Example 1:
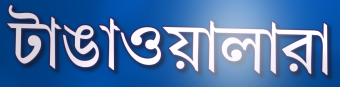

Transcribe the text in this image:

টাঙাওয়ালারা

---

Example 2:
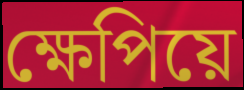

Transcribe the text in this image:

ক্ষেপিয়ে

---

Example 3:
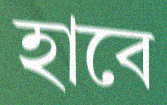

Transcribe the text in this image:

হাবে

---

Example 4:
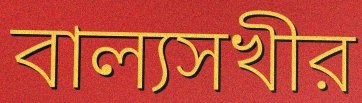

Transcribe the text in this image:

বাল্যসখীর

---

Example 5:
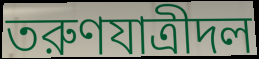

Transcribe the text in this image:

তরুণযাত্রীদল